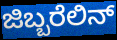
ಜಿಬ್ಬರೆಲಿನ್